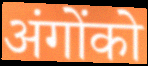
अंगोंको